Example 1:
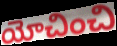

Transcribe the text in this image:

యోచించి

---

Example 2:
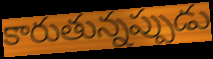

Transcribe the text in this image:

కారుతున్నప్పుడు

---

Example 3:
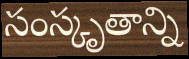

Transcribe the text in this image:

సంస్కృతాన్ని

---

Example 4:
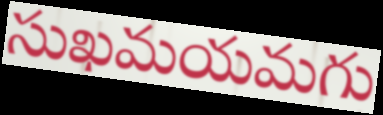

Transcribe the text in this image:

సుఖమయమగు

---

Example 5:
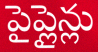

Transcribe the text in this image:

పైప్లైన్లు